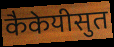
कैकेयीसुत